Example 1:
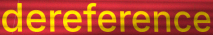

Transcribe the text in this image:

dereference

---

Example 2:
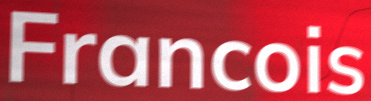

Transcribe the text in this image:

Francois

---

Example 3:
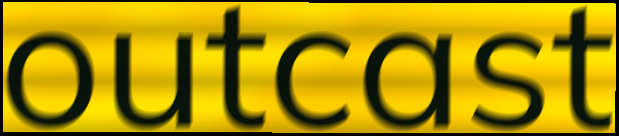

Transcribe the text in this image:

outcast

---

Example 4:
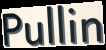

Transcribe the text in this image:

Pullin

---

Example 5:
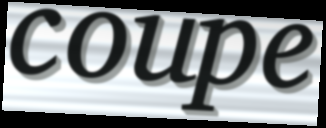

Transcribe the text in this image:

coupe